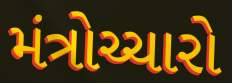
મંત્રોચ્ચારો